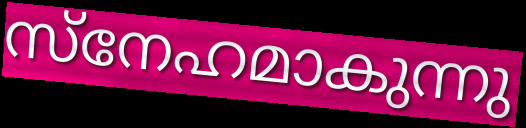
സ്നേഹമാകുന്നു